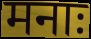
मनाः